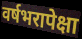
वर्षभरापेक्षा